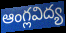
ఆంగ్లవిద్య